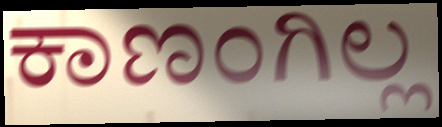
ಕಾಣಂಗಿಲ್ಲ